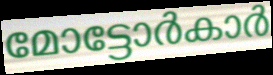
മോട്ടോർകാർ